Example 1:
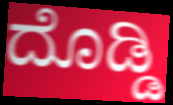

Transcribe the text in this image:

ದೊಡ್ಡಿ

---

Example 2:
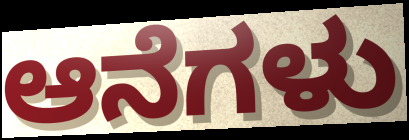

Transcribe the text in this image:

ಆನೆಗಳು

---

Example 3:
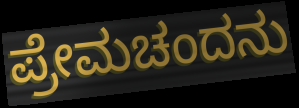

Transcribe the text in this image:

ಪ್ರೇಮಚಂದನು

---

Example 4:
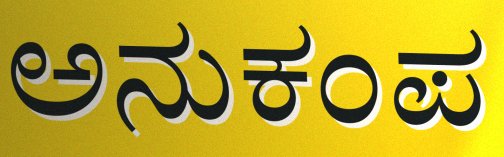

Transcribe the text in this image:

ಅನುಕಂಪ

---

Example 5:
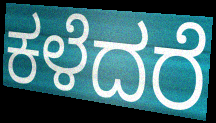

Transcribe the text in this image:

ಕಳೆದರೆ